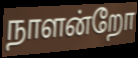
நாளன்றோ